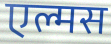
एल्मस